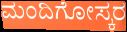
ಮಂದಿಗೋಸ್ಕರ